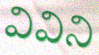
వివిని